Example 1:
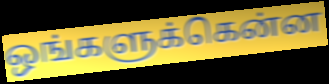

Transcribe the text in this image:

ஒங்களுக்கென்ன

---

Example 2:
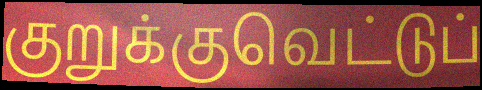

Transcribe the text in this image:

குறுக்குவெட்டுப்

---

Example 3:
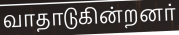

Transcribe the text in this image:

வாதாடுகின்றனர்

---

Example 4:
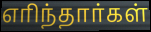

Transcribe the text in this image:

எரிந்தார்கள்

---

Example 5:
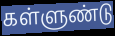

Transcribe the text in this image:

கள்ளுண்டு